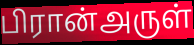
பிரான்அருள்